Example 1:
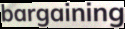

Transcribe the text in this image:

bargaining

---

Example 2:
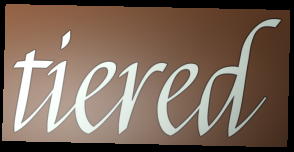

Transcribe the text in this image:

tiered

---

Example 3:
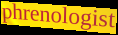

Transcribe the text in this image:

phrenologist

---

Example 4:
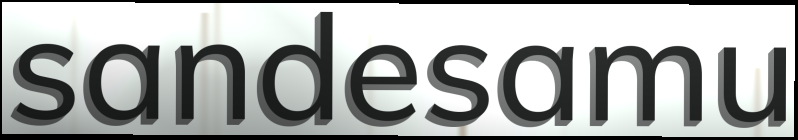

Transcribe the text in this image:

sandesamu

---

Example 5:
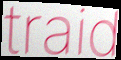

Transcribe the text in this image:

traid